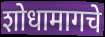
शोधामागचे